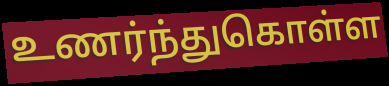
உணர்ந்துகொள்ள